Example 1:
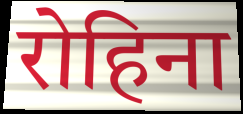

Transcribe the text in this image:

रोहिना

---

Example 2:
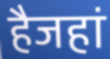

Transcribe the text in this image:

हैजहां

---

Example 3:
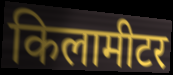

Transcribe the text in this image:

किलामीटर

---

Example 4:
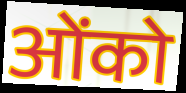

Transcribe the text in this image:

ओंको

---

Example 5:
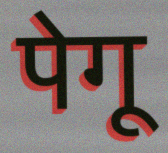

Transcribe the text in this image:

पेगू